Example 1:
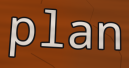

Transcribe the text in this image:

plan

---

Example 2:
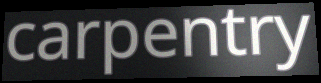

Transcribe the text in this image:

carpentry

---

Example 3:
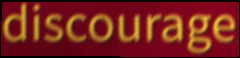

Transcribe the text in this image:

discourage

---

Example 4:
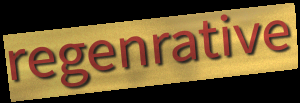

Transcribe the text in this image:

regenrative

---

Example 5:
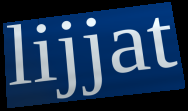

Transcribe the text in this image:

lijjat